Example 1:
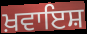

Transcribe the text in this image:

ਖ਼ਵਾਇਸ਼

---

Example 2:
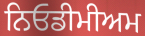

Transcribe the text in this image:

ਨਿਓਡੀਮੀਅਮ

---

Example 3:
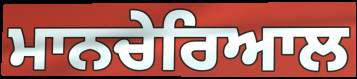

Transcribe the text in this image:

ਮਾਨਚੇਰਿਆਲ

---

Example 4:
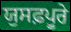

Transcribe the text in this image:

ਯੁਸਫ਼ਪੂਰੇ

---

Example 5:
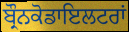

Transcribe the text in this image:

ਬ੍ਰੌਨਕੋਡਾਇਲਟਰਾਂ